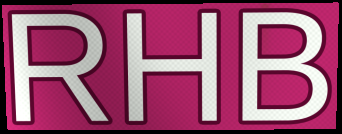
RHB